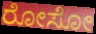
ರೋಸೋ